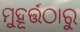
ମୁହୂର୍ତ୍ତଠାରୁ